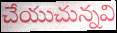
చేయుచున్నవి